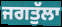
ਜਗਤੁੱਲਾ